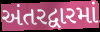
અંતરદ્વારમાં